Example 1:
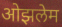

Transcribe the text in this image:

ओझलेम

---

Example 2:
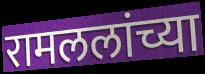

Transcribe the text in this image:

रामललांच्या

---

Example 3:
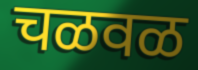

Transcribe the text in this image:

चळवळ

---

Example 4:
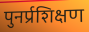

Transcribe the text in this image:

पुनर्प्रशिक्षण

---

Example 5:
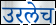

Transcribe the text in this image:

उरलेच